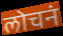
लोचनं